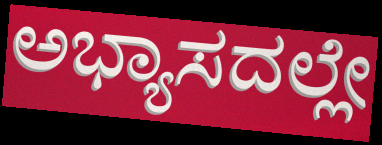
ಅಭ್ಯಾಸದಲ್ಲೇ